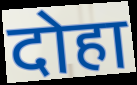
दोहा